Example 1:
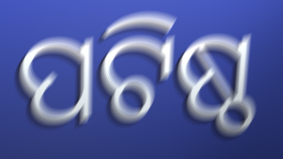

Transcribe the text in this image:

ପଟିଷ୍ଠ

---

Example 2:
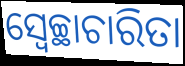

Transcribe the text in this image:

ସ୍ୱେଚ୍ଛାଚାରିତା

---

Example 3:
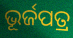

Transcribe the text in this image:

ଭୂର୍ଜପତ୍ର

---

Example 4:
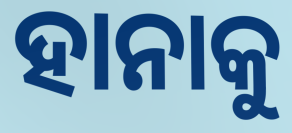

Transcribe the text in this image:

ହାନାକୁ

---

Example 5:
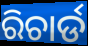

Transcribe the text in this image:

ରିଚାର୍ଡ